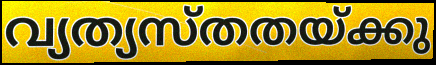
വ്യത്യസ്തതയ്ക്കു